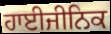
ਹਾਈਜੀਨਿਕ